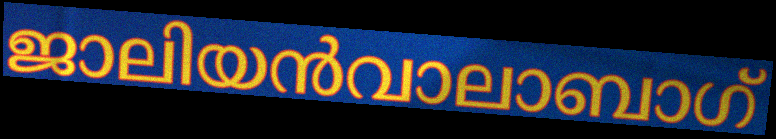
ജാലിയൻവാലാബാഗ്